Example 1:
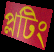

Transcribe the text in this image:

প্লটিং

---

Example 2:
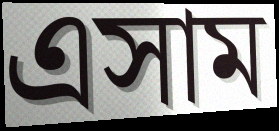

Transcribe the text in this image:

এসাম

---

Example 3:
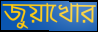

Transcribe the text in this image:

জুয়াখোর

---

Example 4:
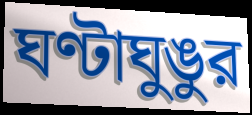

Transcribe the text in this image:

ঘণ্টাঘুঙুর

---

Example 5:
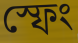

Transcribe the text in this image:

স্ফেং